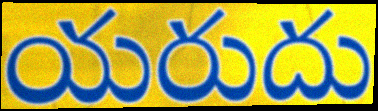
యరుదు